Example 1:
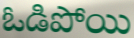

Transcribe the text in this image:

ఓడిపోయి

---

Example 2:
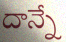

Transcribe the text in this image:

దాన్నే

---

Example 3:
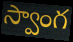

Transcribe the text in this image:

స్వాంగ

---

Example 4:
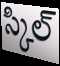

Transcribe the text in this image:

స్కిల్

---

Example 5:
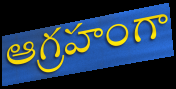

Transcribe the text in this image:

ఆగ్రహంగా